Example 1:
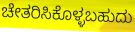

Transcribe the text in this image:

ಚೇತರಿಸಿಕೊಳ್ಳಬಹುದು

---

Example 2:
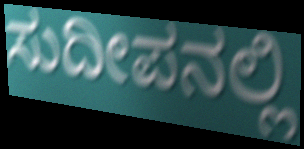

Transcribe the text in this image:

ಸುದೀಪನಲ್ಲಿ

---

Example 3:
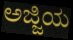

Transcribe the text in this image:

ಅಜ್ಜಿಯ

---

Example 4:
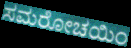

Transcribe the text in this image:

ಸಮರೋಚಯಿಂ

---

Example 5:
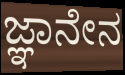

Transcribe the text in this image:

ಜ್ಞಾನೇನ